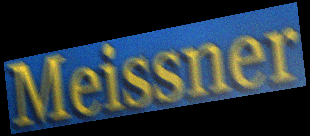
Meissner